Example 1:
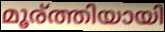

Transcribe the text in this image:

മൂര്ത്തിയായി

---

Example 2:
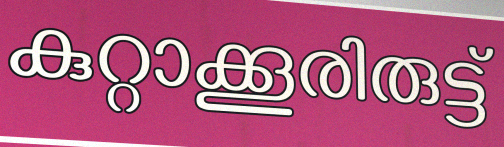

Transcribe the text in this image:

കുറ്റാക്കൂരിരുട്ട്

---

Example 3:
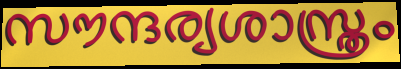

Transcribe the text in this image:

സൗന്ദര്യശാസ്ത്രം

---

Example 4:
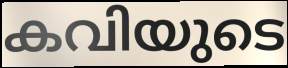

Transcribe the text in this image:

കവിയുടെ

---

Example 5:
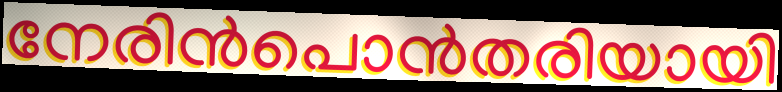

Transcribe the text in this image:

നേരിൻപൊൻതരിയായി